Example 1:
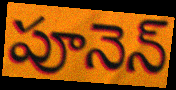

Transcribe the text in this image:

పూనెన్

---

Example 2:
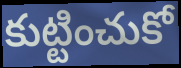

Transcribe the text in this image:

కుట్టించుకో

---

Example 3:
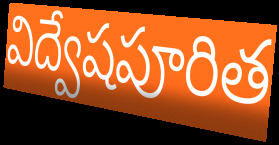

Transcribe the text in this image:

విద్వేషపూరిత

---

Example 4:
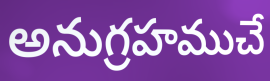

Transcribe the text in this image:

అనుగ్రహముచే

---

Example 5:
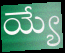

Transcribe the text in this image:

య్యే